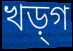
খড়্‌গ